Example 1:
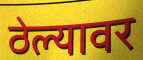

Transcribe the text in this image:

ठेल्यावर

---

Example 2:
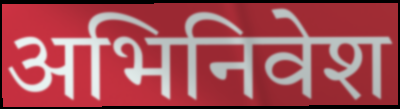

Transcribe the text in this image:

अभिनिवेश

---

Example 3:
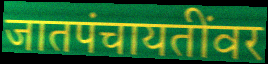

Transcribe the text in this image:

जातपंचायतींवर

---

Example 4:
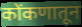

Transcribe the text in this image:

कोंकणातून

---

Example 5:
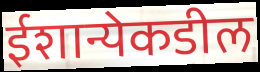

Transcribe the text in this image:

ईशान्येकडील